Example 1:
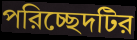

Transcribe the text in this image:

পরিচ্ছেদটির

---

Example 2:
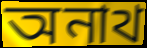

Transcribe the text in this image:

অনাথ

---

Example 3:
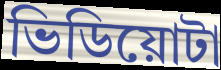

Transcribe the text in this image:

ভিডিয়োটা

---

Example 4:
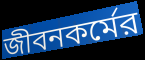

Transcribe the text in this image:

জীবনকর্মের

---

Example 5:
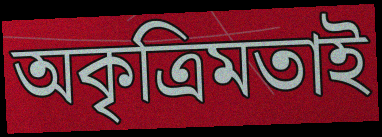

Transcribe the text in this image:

অকৃত্রিমতাই